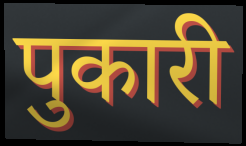
पुकारी